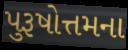
પુરૂષોત્તમના